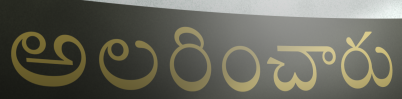
అలరించారు